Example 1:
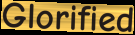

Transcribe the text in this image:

Glorified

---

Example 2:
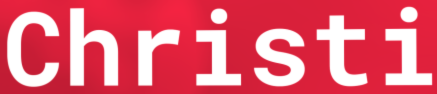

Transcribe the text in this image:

Christi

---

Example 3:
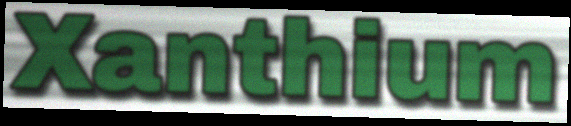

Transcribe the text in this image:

Xanthium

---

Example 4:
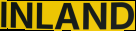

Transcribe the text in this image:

INLAND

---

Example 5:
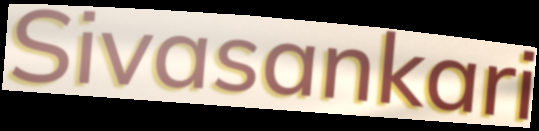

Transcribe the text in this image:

Sivasankari